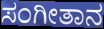
ಸಂಗೀತಾನ